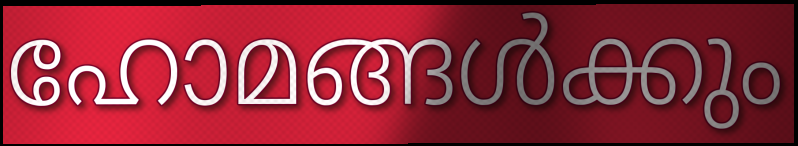
ഹോമങ്ങൾക്കും